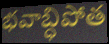
భవాబ్ధిపోత